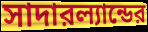
সাদারল্যান্ডের